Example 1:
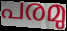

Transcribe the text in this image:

പരമു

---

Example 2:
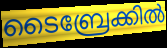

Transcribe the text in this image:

ടൈബ്രേക്കിൽ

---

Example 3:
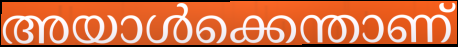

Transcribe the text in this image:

അയാൾക്കെന്താണ്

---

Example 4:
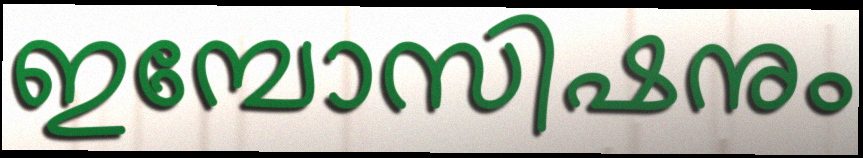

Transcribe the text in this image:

ഇമ്പോസിഷനും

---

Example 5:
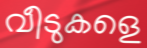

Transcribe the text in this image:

വീടുകളെ